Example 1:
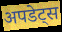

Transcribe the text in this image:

अपडेट्स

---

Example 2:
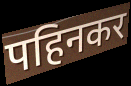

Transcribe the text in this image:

पहिनकर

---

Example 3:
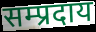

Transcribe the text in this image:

सम्प्रदाय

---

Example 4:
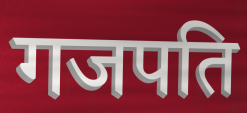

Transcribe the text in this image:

गजपति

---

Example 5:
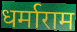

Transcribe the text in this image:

धर्माराम